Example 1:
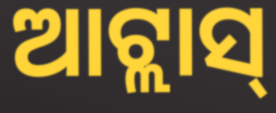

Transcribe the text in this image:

ଆଟ୍ଲାସ୍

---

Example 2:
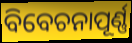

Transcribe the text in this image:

ବିବେଚନାପୂର୍ଣ୍ଣ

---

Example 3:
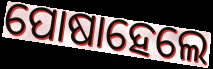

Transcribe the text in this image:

ପୋଷାହେଲେ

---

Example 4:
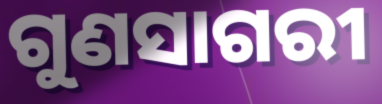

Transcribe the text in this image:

ଗୁଣସାଗରୀ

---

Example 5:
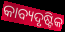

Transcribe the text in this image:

କାବ୍ୟଦୃଷ୍ଟିକ